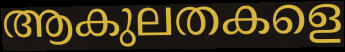
ആകുലതകളെ